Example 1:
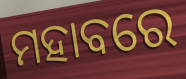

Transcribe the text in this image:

ମହାବରେ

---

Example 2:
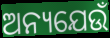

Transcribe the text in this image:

ଅନ୍ୟଯେଉଁ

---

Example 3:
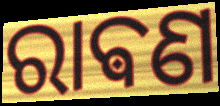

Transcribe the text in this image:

ରାଵଣ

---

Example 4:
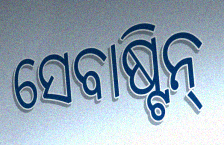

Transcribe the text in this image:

ସେବାଷ୍ଟିନ୍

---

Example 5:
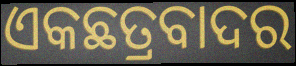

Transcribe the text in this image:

ଏକଛତ୍ରବାଦର